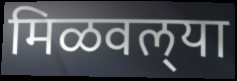
मिळवल्या